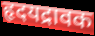
हृदयद्रावक